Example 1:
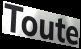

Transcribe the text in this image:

Toute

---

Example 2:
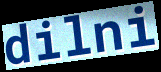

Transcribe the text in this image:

dilni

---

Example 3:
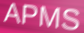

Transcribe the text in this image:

APMS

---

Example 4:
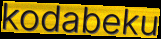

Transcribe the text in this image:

kodabeku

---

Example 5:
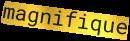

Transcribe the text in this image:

magnifique